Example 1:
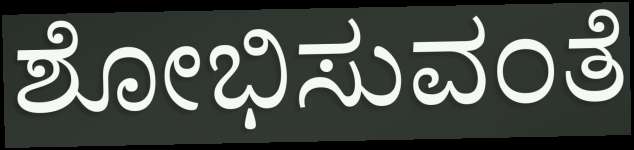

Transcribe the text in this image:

ಶೋಭಿಸುವಂತೆ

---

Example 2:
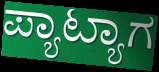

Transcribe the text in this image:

ಪ್ಯಾಟ್ಯಾಗ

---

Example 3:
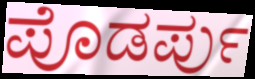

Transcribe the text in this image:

ಪೊಡರ್ಪು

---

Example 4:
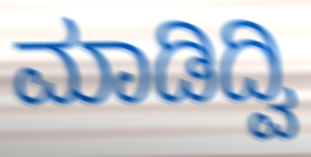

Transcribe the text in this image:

ಮಾಡಿದ್ವಿ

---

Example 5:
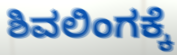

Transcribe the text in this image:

ಶಿವಲಿಂಗಕ್ಕೆ